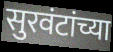
सुरवंटांच्या